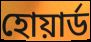
হোয়ার্ড